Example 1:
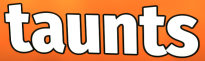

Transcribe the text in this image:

taunts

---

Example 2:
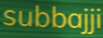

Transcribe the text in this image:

subbajji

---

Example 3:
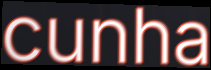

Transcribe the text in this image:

cunha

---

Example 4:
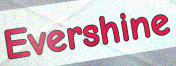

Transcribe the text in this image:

Evershine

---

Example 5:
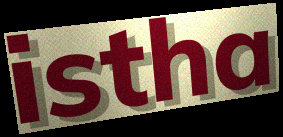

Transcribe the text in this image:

istha